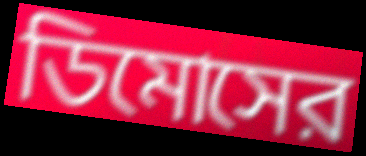
ডিমোসের